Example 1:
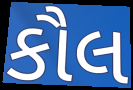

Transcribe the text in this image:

કૌલ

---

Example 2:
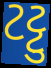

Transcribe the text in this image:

ટટ્ટુ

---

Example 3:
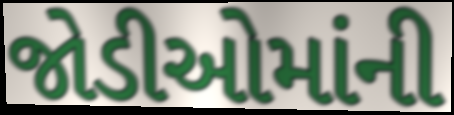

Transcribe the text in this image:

જોડીઓમાંની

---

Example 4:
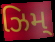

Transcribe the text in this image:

ઝિમ્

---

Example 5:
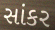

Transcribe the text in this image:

સાંકર